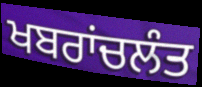
ਖਬਰਾਂਚਲੰਤ